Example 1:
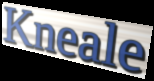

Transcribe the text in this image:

Kneale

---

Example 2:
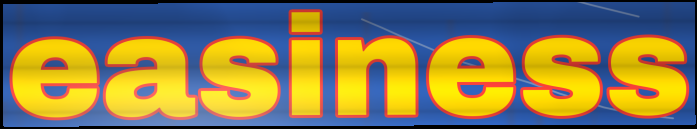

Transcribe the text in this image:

easiness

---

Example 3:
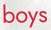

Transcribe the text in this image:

boys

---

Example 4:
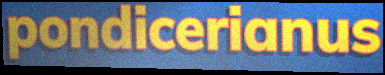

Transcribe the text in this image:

pondicerianus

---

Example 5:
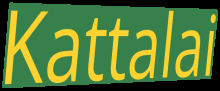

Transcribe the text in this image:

Kattalai